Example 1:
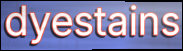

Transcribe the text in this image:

dyestains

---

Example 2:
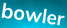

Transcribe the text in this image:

bowler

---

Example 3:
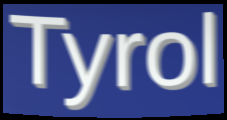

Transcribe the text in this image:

Tyrol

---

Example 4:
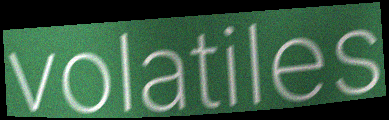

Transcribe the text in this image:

volatiles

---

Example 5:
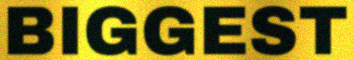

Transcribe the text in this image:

BIGGEST